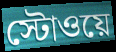
স্টোওয়ে